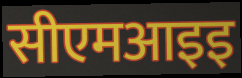
सीएमआइइ